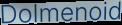
Dolmenoid